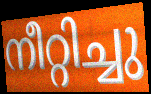
നീറ്റിച്ചു